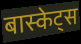
बास्केट्स